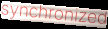
synchronized